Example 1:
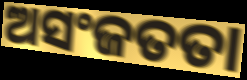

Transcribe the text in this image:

ଅସଂଜତତା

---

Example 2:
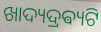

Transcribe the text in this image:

ଖାଦ୍ୟଦ୍ରଵ୍ୟଟି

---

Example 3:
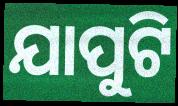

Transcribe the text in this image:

ଯାପୁଟି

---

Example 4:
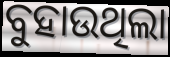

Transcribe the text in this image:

ବୁହାଉଥିଲା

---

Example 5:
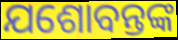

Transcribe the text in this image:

ଯଶୋବନ୍ତଙ୍କ